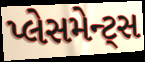
પ્લેસમેન્ટ્સ